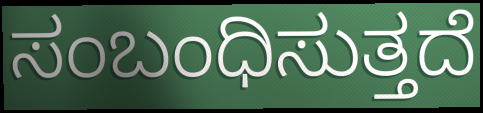
ಸಂಬಂಧಿಸುತ್ತದೆ